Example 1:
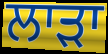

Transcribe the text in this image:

ਲਾੜਾ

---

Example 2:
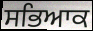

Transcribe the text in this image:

ਸਭਿਆਕ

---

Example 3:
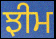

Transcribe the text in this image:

ਝੀਮ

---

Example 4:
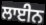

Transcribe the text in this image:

ਲਾਈਨ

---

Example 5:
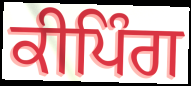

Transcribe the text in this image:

ਕੀਪਿੰਗ